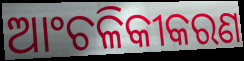
ଆଂଚଳିକୀକରଣ